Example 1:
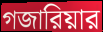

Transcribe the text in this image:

গজারিয়ার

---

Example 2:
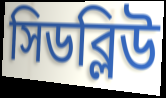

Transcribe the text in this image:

সিডব্লিউ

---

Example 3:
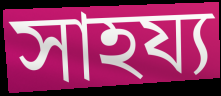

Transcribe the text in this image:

সাহয্য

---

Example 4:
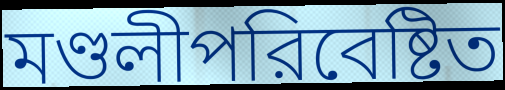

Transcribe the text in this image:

মণ্ডলীপরিবেষ্টিত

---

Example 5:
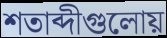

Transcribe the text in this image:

শতাব্দীগুলোয়